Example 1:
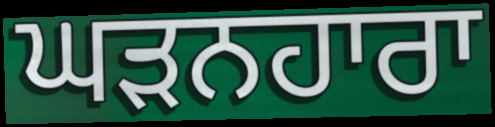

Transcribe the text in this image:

ਘੜਨਹਾਰਾ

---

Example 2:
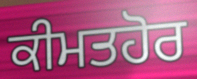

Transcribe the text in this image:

ਕੀਮਤਹੋਰ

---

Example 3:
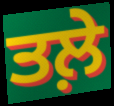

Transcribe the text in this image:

ਤਲ਼ੇ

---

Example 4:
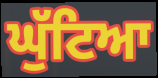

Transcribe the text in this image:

ਘੁੱਟਿਆ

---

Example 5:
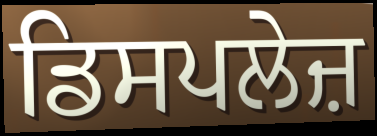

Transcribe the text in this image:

ਡਿਸਪਲੇਜ਼